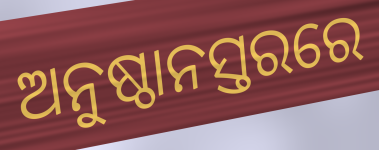
ଅନୁଷ୍ଠାନସ୍ତରରେ